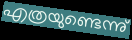
എത്രയുണ്ടെന്നു്